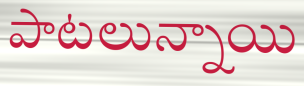
పాటలున్నాయి